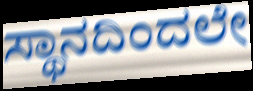
ಸ್ಥಾನದಿಂದಲೇ